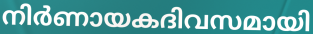
നിർണായകദിവസമായി